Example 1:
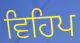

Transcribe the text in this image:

ਵਿਹਿਪ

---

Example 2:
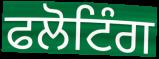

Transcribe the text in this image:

ਫਲੋਟਿੰਗ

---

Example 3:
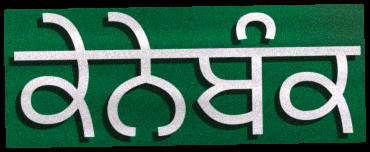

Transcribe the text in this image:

ਕੇਨੇਬੰਕ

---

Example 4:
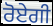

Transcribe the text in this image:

ਰੋਏਗੀ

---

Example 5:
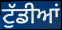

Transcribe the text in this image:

ਟੁੱਡੀਆਂ